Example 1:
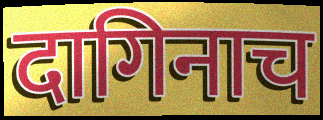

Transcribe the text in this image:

दागिनाच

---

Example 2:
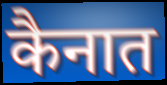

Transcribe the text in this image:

कैनात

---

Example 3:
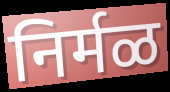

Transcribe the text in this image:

निर्मळ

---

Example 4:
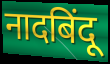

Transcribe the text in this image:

नादबिंदू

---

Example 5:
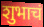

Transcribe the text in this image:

शुभाचं